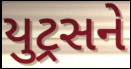
યુટ્રસને